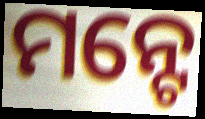
ମନ୍ଟେ